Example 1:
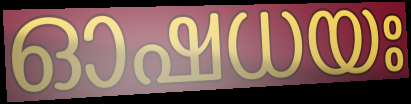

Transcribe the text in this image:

ഓഷധയഃ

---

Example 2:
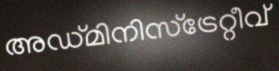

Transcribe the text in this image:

അഡ്മിനിസ്ട്രേറ്റീവ്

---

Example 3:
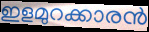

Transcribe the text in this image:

ഇളമുറക്കാരൻ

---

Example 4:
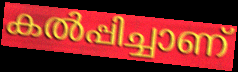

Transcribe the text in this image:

കൽപ്പിച്ചാണ്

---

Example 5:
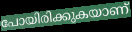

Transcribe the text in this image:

പോയിരിക്കുകയാണ്